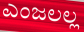
ಎಂಜಲಲ್ಲ